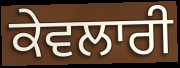
ਕੇਵਲਾਰੀ